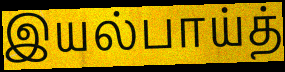
இயல்பாய்த்